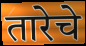
तारेचे